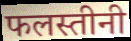
फलस्तीनी